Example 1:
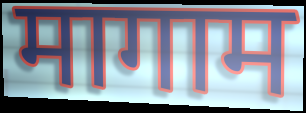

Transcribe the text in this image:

मागाम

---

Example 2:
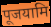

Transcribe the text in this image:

पूजयामि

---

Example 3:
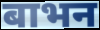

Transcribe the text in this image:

बाभन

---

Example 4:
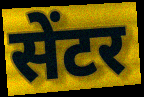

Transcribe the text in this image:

सेंटर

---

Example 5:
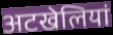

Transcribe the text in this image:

अटखेलियां